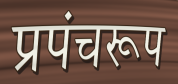
प्रपंचरूप